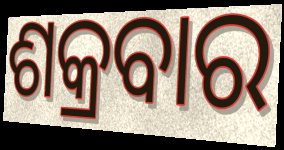
ଶକ୍ରବାର